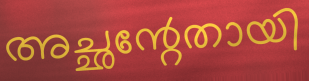
അച്ഛന്റേതായി